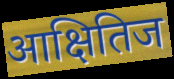
आक्षितिज